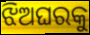
ଝିଅଘରକୁ